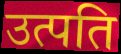
उत्पति